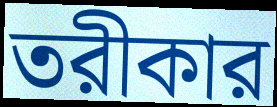
তরীকার